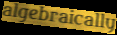
algebraically